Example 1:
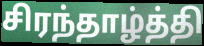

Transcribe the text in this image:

சிரந்தாழ்த்தி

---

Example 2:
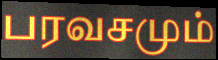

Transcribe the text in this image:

பரவசமும்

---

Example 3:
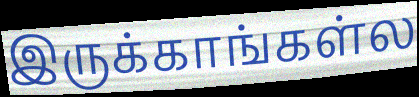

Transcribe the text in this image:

இருக்காங்கள்ல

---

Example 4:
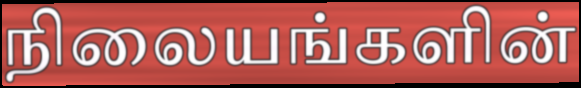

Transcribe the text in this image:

நிலையங்களின்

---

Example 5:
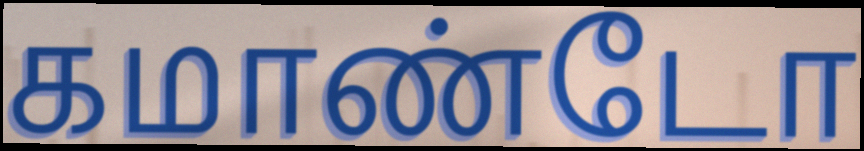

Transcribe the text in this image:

கமாண்டோ